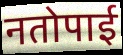
नतोपाई